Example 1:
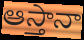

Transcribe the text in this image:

ఆస్తానా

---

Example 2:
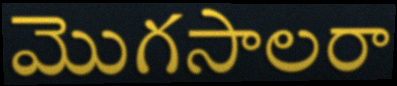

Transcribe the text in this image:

మొగసాలరా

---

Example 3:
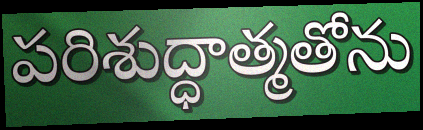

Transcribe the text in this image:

పరిశుద్ధాత్మతోను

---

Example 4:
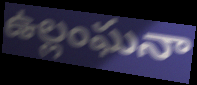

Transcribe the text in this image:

ఉల్లంఘనా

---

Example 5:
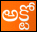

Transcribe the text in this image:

అక్టో